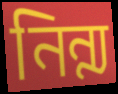
নিন্ম